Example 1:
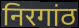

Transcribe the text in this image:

निरगांठ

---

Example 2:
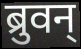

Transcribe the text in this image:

ब्रुवन्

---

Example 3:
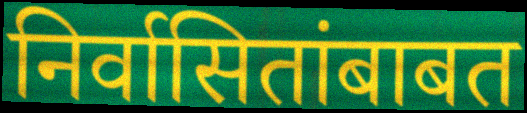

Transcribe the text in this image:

निर्वासितांबाबत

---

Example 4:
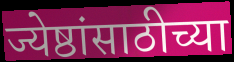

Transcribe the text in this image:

ज्येष्ठांसाठीच्या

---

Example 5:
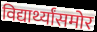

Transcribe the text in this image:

विद्यार्थ्यांसमोर